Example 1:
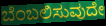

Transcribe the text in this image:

ಬೆಂಬಲಿಸುವುದೇ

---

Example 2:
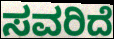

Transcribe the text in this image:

ಸವರಿದೆ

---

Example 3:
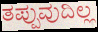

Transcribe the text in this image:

ತಪ್ಪುವುದಿಲ್ಲ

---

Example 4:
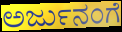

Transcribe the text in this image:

ಅರ್ಜುನಂಗೆ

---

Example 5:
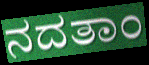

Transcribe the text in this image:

ನದತಾಂ